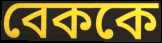
বেককে